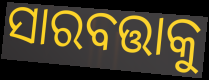
ସାରବତ୍ତାକୁ